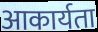
आकार्यता